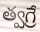
త్వగ్రే